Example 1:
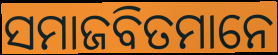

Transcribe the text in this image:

ସମାଜବିତମାନେ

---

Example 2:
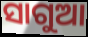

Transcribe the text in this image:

ସାଗୁଆ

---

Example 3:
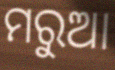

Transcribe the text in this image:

ମରୁଆ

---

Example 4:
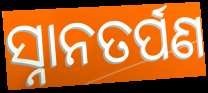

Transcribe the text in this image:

ସ୍ନାନତର୍ପଣ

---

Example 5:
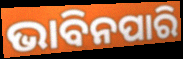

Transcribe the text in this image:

ଭାବିନପାରି